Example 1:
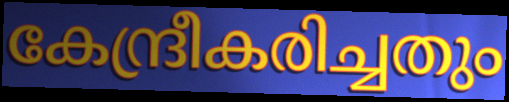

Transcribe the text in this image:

കേന്ദ്രീകരിച്ചതും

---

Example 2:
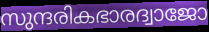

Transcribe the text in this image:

സുന്ദരികഭാരദ്വാജോ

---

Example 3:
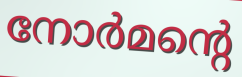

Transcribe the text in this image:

നോർമന്റെ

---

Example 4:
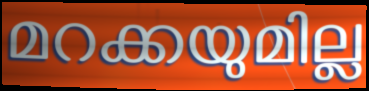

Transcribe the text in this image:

മറക്കയുമില്ല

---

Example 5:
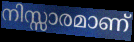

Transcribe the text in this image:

നിസ്സാരമാണ്